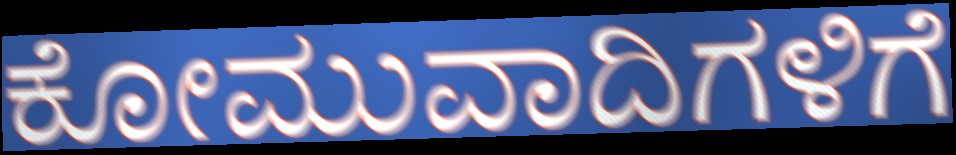
ಕೋಮುವಾದಿಗಳಿಗೆ